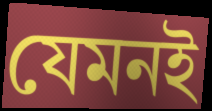
যেমনই